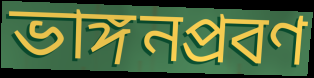
ভাঙ্গনপ্রবণ